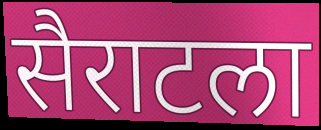
सैराटला